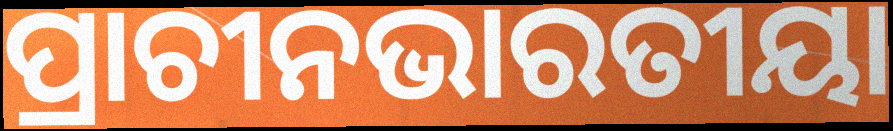
ପ୍ରାଚୀନଭାରତୀୟା